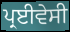
ਪ੍ਰਈਵੇਸੀ